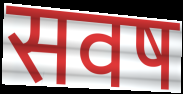
सवष